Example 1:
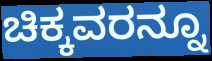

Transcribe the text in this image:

ಚಿಕ್ಕವರನ್ನೂ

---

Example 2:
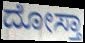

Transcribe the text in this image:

ದೋಸ್ತಾ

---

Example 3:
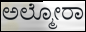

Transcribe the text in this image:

ಅಲ್ಮೋರಾ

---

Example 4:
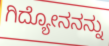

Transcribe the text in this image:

ಗಿದ್ಯೋನನನ್ನು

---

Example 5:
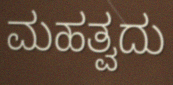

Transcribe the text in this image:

ಮಹತ್ವದು